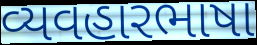
વ્યવહારભાષા